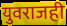
युवराजही